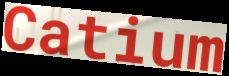
Catium